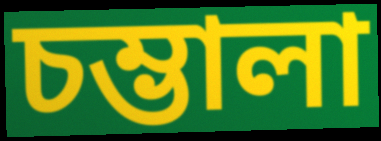
চম্ভালা